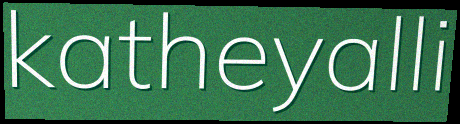
katheyalli